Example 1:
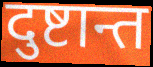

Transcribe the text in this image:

दुष्टान्त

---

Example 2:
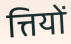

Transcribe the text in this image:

त्तियों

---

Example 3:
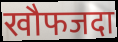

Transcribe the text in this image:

खौफजदा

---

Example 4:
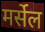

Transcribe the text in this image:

मर्सेल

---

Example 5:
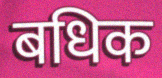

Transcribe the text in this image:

बधिक